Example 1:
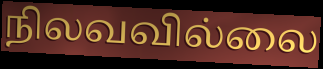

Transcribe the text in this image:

நிலவவில்லை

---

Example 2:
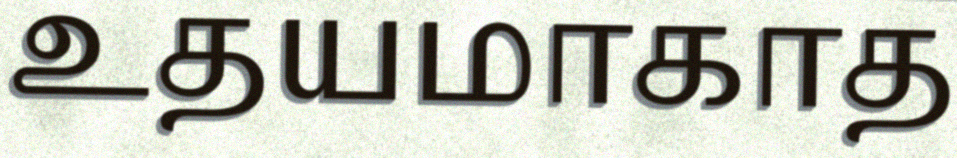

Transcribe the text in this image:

உதயமாகாத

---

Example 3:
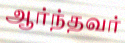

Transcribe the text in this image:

ஆர்ந்தவர்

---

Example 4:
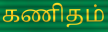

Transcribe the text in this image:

கணிதம்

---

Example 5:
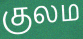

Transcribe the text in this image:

குலம